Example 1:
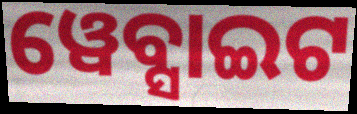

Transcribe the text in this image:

ୱେବ୍ସାଇଟ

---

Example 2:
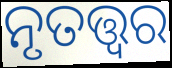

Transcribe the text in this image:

ନୃତତ୍ତ୍ଵର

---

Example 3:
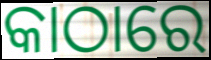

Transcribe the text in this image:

କାଠାରେ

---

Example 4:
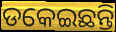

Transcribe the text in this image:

ଡକେଇଛନ୍ତି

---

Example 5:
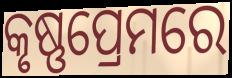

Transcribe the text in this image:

କୃଷ୍ଣପ୍ରେମରେ